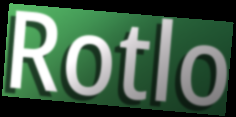
Rotlo